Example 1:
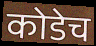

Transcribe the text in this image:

कोडेच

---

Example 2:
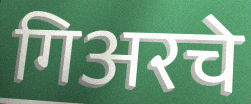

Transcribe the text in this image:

गिअरचे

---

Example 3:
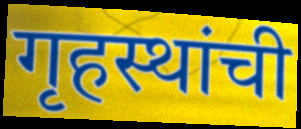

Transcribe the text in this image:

गृहस्थांची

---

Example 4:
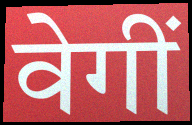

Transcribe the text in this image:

वेगीं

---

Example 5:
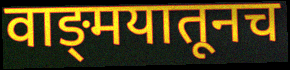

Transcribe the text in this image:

वाङ्मयातूनच